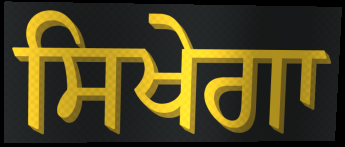
ਸਿਖੇਗਾ